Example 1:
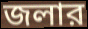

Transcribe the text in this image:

জলার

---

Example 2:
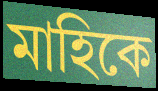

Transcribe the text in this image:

মাহিকে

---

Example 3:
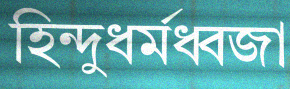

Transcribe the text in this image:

হিন্দুধর্মধ্বজা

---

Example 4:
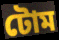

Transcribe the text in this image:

টোম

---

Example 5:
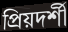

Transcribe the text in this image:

প্রিয়দর্শী